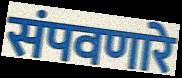
संपवणारे